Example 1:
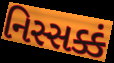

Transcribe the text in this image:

નિસ્સક્કં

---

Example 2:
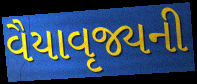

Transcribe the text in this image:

વૈયાવૃજ્યની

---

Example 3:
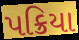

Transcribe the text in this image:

પક્રિયા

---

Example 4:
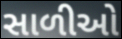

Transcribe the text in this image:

સાળીઓ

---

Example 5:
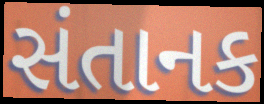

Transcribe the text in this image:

સંતાનક